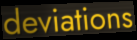
deviations